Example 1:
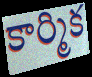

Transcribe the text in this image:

కార్మిక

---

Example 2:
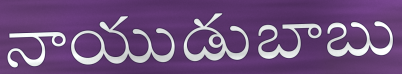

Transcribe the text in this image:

నాయుడుబాబు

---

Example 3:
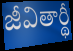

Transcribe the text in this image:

జీవితార్థీ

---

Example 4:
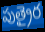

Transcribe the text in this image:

పుత్రైర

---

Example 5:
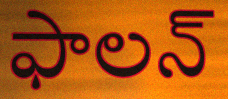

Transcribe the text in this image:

ఫాలన్